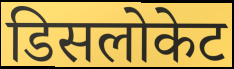
डिसलोकेट